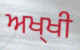
ਅਖ੍ਖੀ